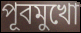
পূবমুখো